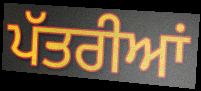
ਪੱਤਰੀਆਂ